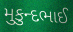
મુકુન્દભાઈ